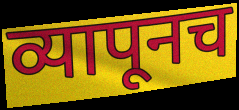
व्यापूनच